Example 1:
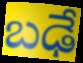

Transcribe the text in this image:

బఢే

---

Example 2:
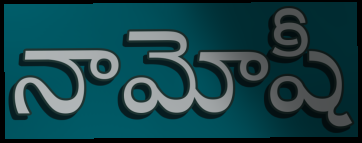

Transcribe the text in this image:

నామోషీ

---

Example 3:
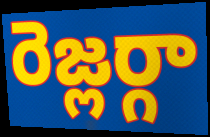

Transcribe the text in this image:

రెజ్లర్గా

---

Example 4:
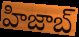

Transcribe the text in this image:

హిజాబ్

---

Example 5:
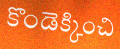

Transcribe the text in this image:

కొండెక్కించి